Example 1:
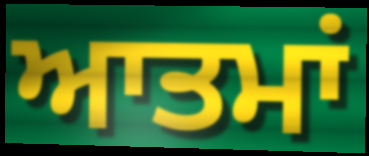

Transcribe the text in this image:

ਆਤਮਾਂ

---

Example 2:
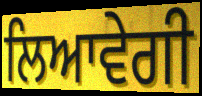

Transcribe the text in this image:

ਲਿਆਵੇਗੀ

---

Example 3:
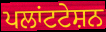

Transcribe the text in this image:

ਪਲਾਂਟਟੇਸ਼ਨ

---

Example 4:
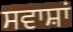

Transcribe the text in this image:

ਸਵਾਸ਼ਾਂ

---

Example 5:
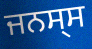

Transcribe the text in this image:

ਜਨਸ੍ਸ